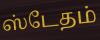
ஸ்டேதம்